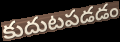
కుదుటపడడం